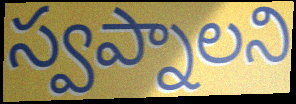
స్వప్నాలని